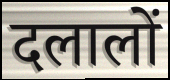
दलालों